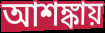
আশঙ্কায়